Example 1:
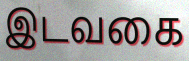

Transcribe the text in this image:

இடவகை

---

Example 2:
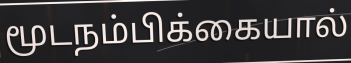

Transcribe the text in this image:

மூடநம்பிக்கையால்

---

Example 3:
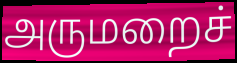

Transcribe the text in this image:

அருமறைச்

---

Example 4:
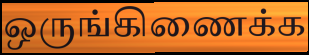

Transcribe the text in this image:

ஒருங்கிணைக்க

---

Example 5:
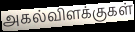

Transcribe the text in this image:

அகல்விளக்குகள்